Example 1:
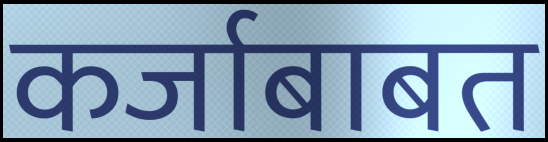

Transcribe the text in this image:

कर्जाबाबत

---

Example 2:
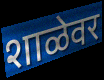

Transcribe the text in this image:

शाळेवर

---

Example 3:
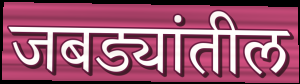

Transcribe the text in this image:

जबड्यांतील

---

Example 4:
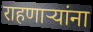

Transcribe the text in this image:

राहणाऱ्यांना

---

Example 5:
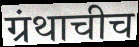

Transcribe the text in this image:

ग्रंथाचीच